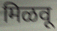
मिळवू